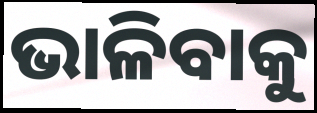
ଭାଳିବାକୁ